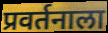
प्रवर्तनाला